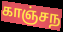
காஞ்சந